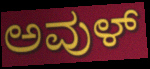
ಅವುಳ್